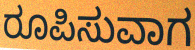
ರೂಪಿಸುವಾಗ